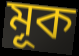
মূক